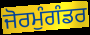
ਜੋਰਮੁੰਗੰਡਰ